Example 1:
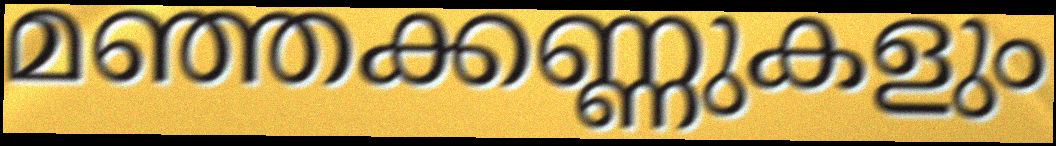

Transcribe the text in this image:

മഞ്ഞക്കണ്ണുകളും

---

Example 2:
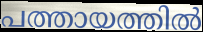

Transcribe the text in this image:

പത്തായത്തിൽ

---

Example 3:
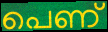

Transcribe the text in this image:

പെണ്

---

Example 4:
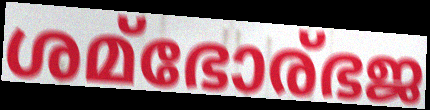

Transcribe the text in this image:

ശമ്ഭോര്ഭജ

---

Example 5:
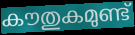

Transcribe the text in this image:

കൗതുകമുണ്ട്